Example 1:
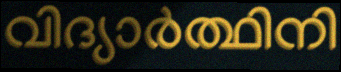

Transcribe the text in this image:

വിദ്യാർത്ഥിനി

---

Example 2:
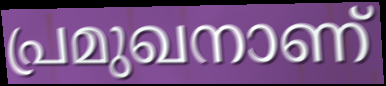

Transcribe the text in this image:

പ്രമുഖനാണ്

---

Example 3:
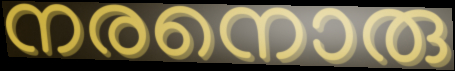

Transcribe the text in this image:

നരനൊരു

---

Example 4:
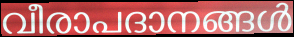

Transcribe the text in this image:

വീരാപദാനങ്ങൾ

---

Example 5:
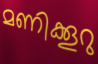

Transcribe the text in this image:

മണിക്കൂറു